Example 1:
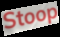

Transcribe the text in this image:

Stoop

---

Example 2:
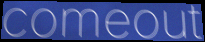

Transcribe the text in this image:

comeout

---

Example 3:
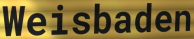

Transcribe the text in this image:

Weisbaden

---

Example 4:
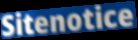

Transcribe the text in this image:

Sitenotice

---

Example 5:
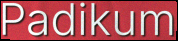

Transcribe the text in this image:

Padikum